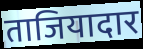
ताजियादार